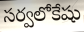
సర్వలోకేషు